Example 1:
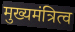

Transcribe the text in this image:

मुख्यमंत्रित्व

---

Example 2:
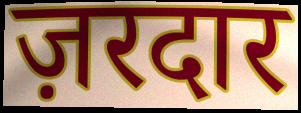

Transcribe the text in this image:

ज़रदार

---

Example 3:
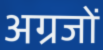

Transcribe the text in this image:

अग्रजों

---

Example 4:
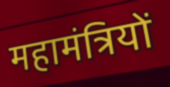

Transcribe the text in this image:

महामंत्रियों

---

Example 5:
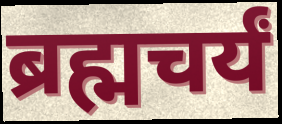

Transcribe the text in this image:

ब्रह्मचर्यं